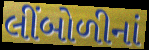
લીંબોળીનાં